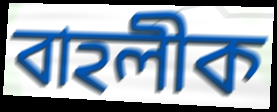
বাহলীক